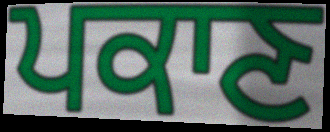
ਪਕਾਣ